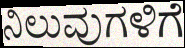
ನಿಲುವುಗಳಿಗೆ